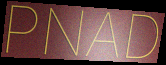
PNAD